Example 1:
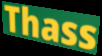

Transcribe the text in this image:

Thass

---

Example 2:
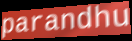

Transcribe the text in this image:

parandhu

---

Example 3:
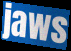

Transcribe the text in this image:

jaws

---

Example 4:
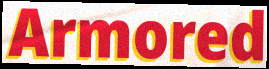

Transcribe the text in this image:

Armored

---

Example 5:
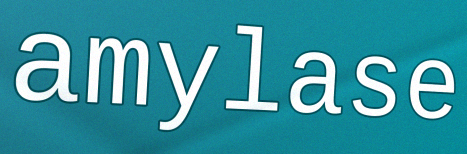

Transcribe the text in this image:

amylase